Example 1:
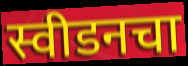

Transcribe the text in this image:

स्वीडनचा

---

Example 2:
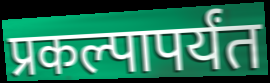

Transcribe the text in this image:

प्रकल्पापर्यंत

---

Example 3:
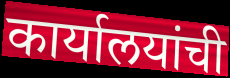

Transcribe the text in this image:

कार्यालयांची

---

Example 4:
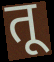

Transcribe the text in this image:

तू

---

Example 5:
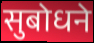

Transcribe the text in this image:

सुबोधने